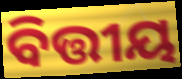
ବିତ୍ତୀୟ